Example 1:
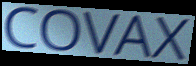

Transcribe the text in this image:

COVAX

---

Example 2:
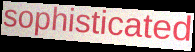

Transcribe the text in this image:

sophisticated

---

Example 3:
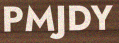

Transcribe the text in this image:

PMJDY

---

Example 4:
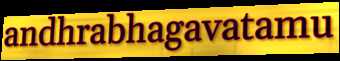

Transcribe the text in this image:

andhrabhagavatamu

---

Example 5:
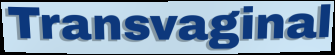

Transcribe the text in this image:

Transvaginal